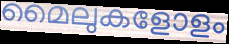
മൈലുകളോളം